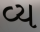
વ્ય